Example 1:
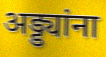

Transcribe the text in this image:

अड्ड्यांना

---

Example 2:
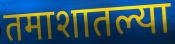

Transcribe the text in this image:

तमाशातल्या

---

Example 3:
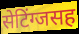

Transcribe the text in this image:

सेटिंग्जसह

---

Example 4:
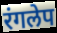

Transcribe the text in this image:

रंगलेप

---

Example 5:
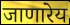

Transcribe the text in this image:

जाणारेय